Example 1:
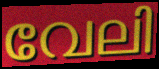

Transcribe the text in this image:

വേലി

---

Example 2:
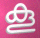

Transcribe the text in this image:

കൂ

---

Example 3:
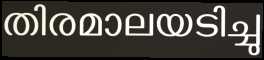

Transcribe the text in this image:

തിരമാലയടിച്ചു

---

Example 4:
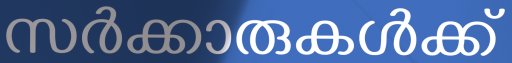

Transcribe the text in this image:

സർക്കാരുകൾക്ക്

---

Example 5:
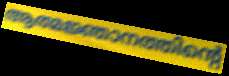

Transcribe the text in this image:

ആത്മജ്ഞാനത്തിന്റെ